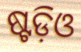
ଷ୍ଟଡ଼ିଓ